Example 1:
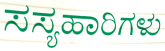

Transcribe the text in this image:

ಸಸ್ಯಹಾರಿಗಳು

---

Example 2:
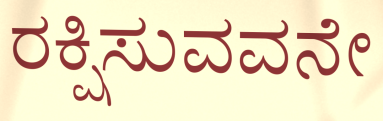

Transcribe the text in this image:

ರಕ್ಷಿಸುವವನೇ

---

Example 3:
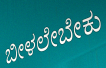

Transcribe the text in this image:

ಬೀಳಲೇಬೇಕು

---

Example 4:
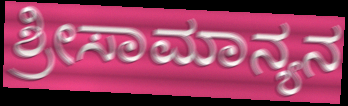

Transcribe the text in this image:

ಶ್ರೀಸಾಮಾನ್ಯನ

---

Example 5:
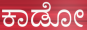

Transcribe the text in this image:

ಕಾಡೋ